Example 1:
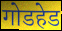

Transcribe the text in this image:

गोडहेड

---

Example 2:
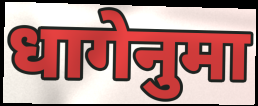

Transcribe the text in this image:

धागेनुमा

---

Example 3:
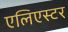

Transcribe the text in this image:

एलिएस्टर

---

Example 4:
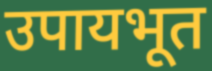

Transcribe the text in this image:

उपायभूत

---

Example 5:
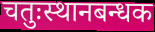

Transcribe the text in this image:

चतुःस्थानबन्धक